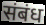
संबंध